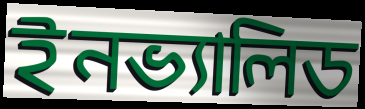
ইনভ্যালিড